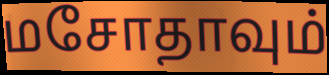
மசோதாவும்